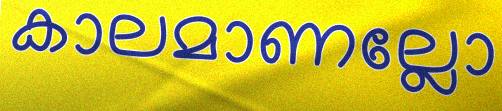
കാലമാണല്ലോ